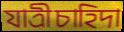
যাত্রীচাহিদা